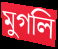
মুগলি